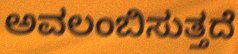
ಅವಲಂಬಿಸುತ್ತದೆ